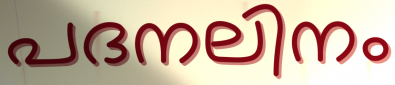
പദനലിനം